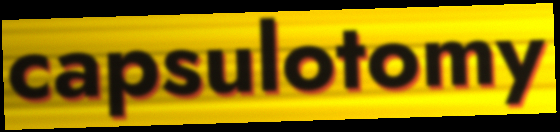
capsulotomy